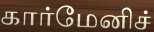
கார்மேனிச்